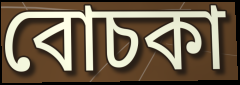
বোচকা